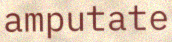
amputate